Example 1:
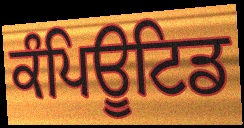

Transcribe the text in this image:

ਕੰਪਿਊਟਿਡ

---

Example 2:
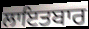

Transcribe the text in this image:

ਲਾਇਤਬਾਰ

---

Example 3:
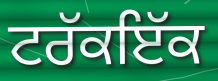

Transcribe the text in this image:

ਟਰੱਕਇੱਕ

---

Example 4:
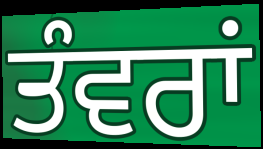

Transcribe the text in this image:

ਤੰਵਰਾਂ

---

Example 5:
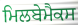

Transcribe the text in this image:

ਮਿਲਬੇਮੈਕਸ